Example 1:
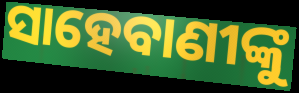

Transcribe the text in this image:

ସାହେବାଣୀଙ୍କୁ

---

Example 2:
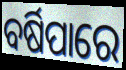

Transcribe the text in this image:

ବର୍ଷିପାରେ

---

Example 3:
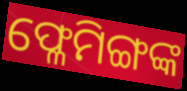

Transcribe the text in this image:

ଫ୍ଳେମିଙ୍ଗଙ୍କ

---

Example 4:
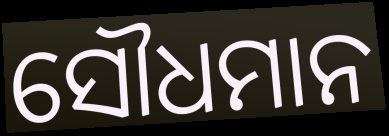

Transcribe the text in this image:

ସୌଧମାନ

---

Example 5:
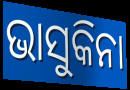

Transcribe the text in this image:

ଭାସୁକିନା